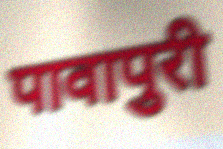
पावापुरी